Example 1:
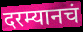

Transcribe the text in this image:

दरम्यानचं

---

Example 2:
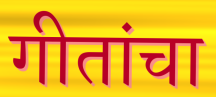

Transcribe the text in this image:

गीतांचा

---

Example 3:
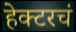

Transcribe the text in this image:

हेक्टरचं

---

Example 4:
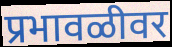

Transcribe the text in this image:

प्रभावळीवर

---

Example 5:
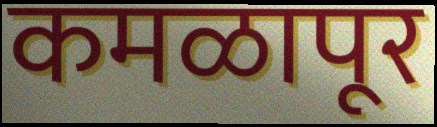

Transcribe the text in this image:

कमळापूर